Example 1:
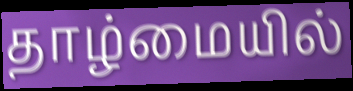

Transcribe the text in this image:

தாழ்மையில்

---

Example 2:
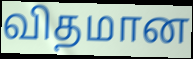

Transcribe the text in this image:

விதமான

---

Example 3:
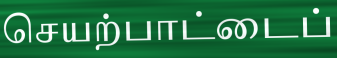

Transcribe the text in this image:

செயற்பாட்டைப்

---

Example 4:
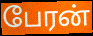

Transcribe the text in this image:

பேரன்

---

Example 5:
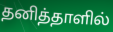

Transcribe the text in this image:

தனித்தாளில்